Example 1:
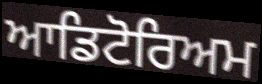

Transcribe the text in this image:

ਆਡਿਟੋਰਿਅਮ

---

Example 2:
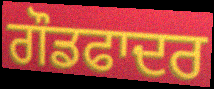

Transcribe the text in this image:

ਗੌਡਫਾਦਰ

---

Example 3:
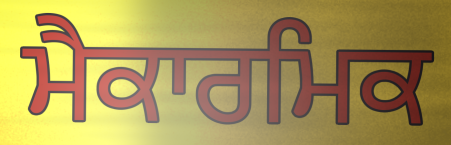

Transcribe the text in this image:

ਮੈਕਾਰਮਿਕ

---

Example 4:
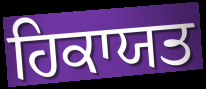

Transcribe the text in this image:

ਹਿਕਾਯਤ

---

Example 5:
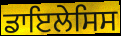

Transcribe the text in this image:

ਡਾਇਲੇਸਿਸ